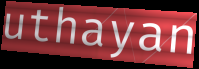
uthayan